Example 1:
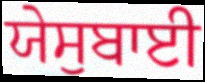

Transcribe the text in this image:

ਯੇਸੁਬਾਈ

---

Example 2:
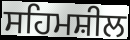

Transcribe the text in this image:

ਸਹਿਮਸ਼ੀਲ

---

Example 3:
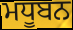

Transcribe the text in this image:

ਮਧੂਬਨ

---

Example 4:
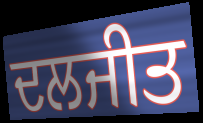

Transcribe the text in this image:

ਦਲਜੀਤ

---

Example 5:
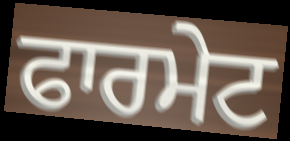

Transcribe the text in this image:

ਫਾਰਮੇਟ